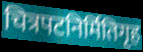
चित्रपटनिर्मितिगृह